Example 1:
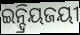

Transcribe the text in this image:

ଇନ୍ଦ୍ରିୟଜୟୀ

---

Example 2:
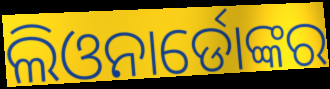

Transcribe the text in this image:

ଲିଓନାର୍ଡୋଙ୍କର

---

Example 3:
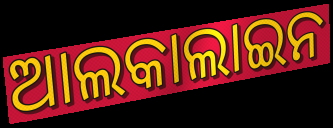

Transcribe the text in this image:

ଆଲକାଲାଇନ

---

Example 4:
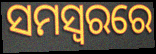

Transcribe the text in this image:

ସମସ୍ବରରେ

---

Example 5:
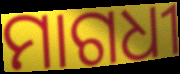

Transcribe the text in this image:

ମାଗଧୀ